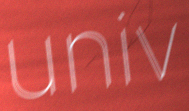
univ